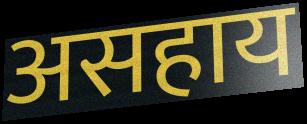
असहाय